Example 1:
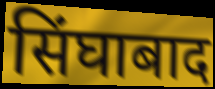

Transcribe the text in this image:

सिंघाबाद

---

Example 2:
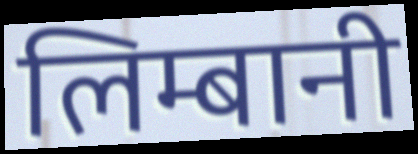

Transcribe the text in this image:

लिम्बानी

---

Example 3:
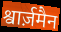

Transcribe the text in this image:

श्वार्ज़मैन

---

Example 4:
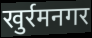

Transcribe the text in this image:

खुर्रमनगर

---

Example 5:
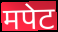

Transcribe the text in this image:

मपेट